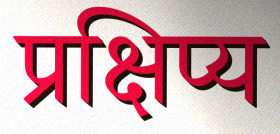
प्रक्षिप्य